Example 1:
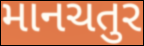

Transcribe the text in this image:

માનચતુર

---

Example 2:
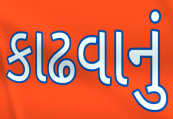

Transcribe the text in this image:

કાઢવાનું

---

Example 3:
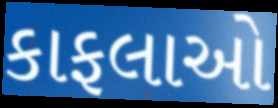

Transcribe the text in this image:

કાફલાઓ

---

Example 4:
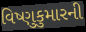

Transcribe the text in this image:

વિષ્ણુકુમારની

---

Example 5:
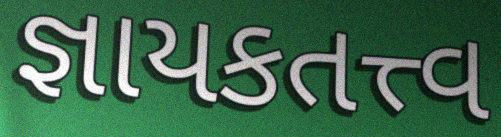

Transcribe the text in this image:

જ્ઞાયકતત્ત્વ